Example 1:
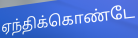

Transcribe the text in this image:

ஏந்திக்கொண்டே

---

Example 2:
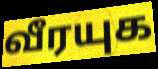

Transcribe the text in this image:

வீரயுக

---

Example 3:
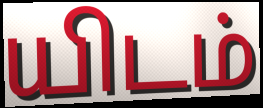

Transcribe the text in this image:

யிடம்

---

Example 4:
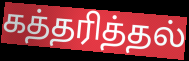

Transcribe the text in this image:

கத்தரித்தல்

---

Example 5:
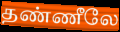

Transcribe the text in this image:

தண்ணீலே